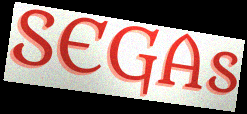
SEGAs